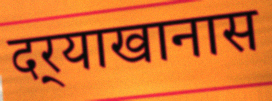
दर्याखानास